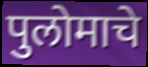
पुलोमाचे